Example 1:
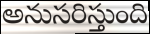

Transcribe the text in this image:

అనుసరిస్తుంది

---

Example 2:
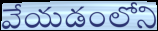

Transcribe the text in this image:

వేయడంలోని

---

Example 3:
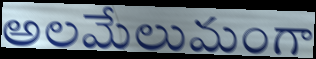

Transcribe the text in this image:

అలమేలుమంగా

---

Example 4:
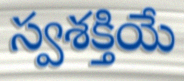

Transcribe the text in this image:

స్వశక్తియే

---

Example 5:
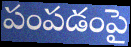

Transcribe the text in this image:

పంపడంపై